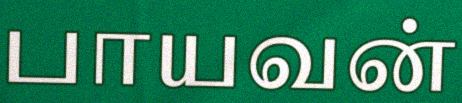
பாயவன்